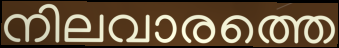
നിലവാരത്തെ